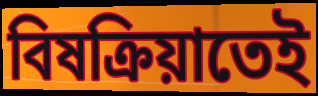
বিষক্রিয়াতেই